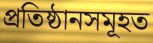
প্ৰতিষ্ঠানসমূহত